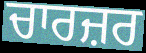
ਚਾਰਜ਼ਰ